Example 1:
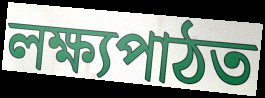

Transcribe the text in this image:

লক্ষ্যপাঠত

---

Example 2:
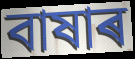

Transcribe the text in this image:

বাষাৰ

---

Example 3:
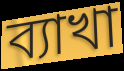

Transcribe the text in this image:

ব্যাখা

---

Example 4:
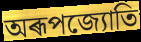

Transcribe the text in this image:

অৰূপজ্যোতি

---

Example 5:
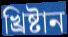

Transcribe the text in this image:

খ্ৰিষ্টান